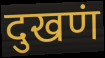
दुखणं